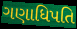
ગણાધિપતિ